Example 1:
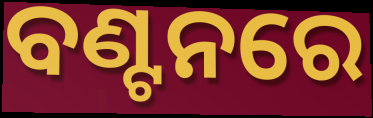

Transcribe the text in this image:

ବଣ୍ଟନରେ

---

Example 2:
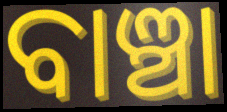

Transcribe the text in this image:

ବାଞ୍ଚା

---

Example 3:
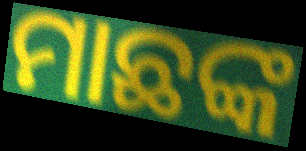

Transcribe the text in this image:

ମାଛଙ୍କ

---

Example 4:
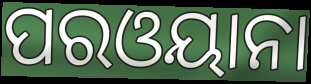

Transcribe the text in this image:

ପରଓୟାନା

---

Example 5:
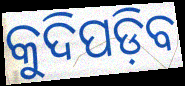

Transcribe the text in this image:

କୁଦିପଡ଼ିବ